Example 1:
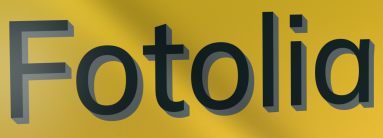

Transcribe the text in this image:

Fotolia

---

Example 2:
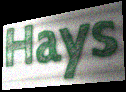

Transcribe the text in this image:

Hays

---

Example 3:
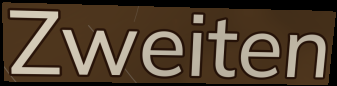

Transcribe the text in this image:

Zweiten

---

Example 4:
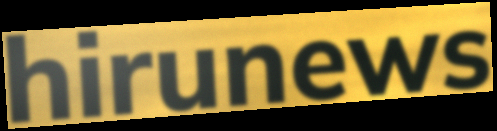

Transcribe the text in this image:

hirunews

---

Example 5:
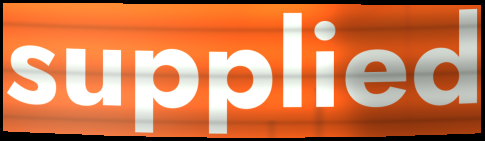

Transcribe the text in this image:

supplied